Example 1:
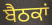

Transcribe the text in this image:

ਬੈਠਕਾਂ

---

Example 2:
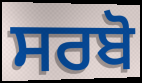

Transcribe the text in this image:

ਸਰਬੋ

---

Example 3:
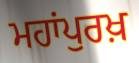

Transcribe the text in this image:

ਮਹਾਂਪੁਰਖ਼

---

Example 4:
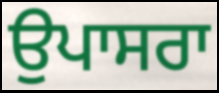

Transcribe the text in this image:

ਉਪਾਸਰਾ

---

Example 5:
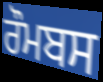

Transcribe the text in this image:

ਰੌਮਬਸ